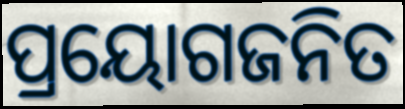
ପ୍ରୟୋଗଜନିତ